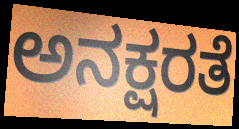
ಅನಕ್ಷರತೆ